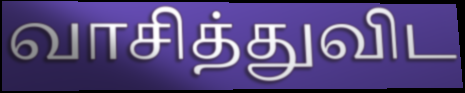
வாசித்துவிட